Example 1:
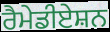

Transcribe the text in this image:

ਰੈਮੇਡੀਏਸ਼ਨ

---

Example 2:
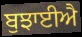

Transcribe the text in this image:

ਬੁਝਾਈਐ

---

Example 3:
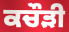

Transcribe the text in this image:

ਕਚੌੜੀ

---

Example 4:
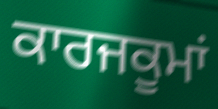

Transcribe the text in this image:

ਕਾਰਜਕੂਮਾਂ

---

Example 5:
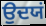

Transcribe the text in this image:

ਉਦਯਂ